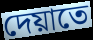
দেয়াতে